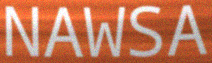
NAWSA